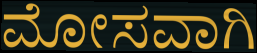
ಮೋಸವಾಗಿ